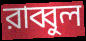
রাব্বুল